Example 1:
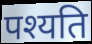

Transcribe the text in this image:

पश्यति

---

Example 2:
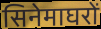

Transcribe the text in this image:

सिनेमाघरों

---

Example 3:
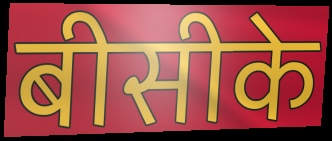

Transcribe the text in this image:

बीसीके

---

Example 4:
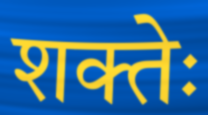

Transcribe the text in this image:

शक्तेः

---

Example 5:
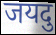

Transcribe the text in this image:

जयदु